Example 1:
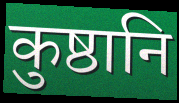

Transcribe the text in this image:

कुष्ठानि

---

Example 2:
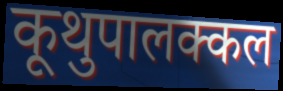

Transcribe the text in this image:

कूथुपालक्कल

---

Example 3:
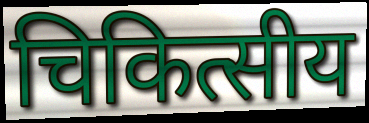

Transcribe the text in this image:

चिकित्सीय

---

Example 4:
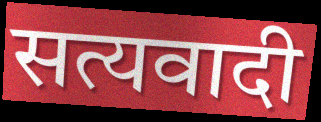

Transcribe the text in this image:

सत्यवादी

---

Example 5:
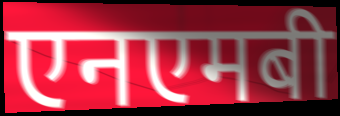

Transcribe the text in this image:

एनएमबी